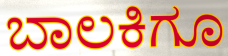
ಬಾಲಕಿಗೂ